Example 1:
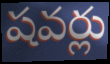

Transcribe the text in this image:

షవర్లు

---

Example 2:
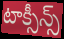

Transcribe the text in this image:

టాక్సీన్స్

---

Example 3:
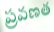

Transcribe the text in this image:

ప్రవణత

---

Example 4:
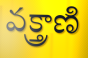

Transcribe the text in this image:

వక్త్రాణి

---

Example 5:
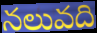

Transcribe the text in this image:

నలువది